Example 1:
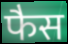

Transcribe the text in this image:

फैस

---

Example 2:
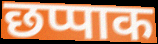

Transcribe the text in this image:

छप्पाक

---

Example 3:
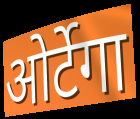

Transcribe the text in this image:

ओर्टेगा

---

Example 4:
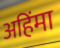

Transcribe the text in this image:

अहिंमा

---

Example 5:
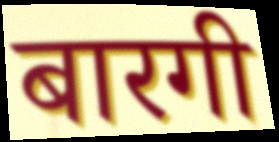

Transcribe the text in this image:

बारगी